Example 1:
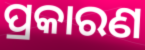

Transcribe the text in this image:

ପ୍ରକାରଣ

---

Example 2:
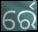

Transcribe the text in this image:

ର୍ରେ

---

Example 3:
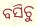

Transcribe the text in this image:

ବସିଚୁ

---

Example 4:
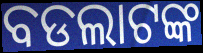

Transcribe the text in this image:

ବଡଲାଟଙ୍କ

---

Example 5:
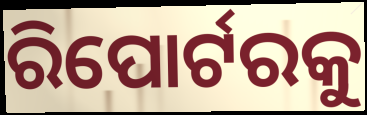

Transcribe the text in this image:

ରିପୋର୍ଟରକୁ